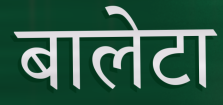
बालेटा